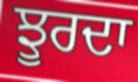
ਝੂਰਦਾ